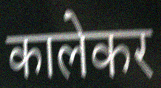
कालेकर